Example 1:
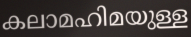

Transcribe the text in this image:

കലാമഹിമയുള്ള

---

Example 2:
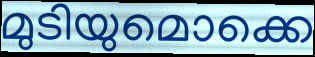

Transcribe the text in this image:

മുടിയുമൊക്കെ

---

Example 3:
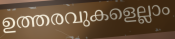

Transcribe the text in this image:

ഉത്തരവുകളെല്ലാം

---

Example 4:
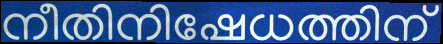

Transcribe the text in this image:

നീതിനിഷേധത്തിന്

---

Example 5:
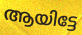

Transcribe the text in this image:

ആയിട്ടേ